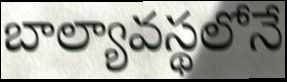
బాల్యావస్థలోనే